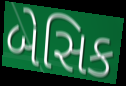
બેસિક